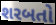
શરબતો